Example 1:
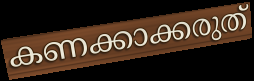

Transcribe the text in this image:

കണക്കാക്കരുത്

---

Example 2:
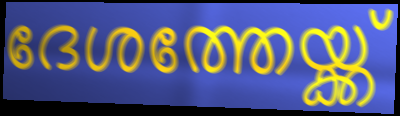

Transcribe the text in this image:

ദേശത്തേയ്ക്ക്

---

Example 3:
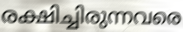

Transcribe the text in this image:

രക്ഷിച്ചിരുന്നവരെ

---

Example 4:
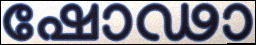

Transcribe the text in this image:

ഷോഢാ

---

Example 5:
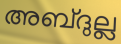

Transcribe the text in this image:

അബ്ദുല്ല